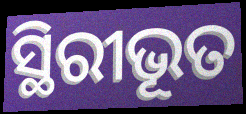
ସ୍ଥିରୀଭୂତ